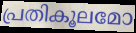
പ്രതികൂലമോ